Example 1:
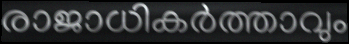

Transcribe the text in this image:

രാജാധികർത്താവും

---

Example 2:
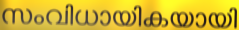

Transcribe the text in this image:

സംവിധായികയായി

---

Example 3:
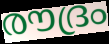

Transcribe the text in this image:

രൗദ്രം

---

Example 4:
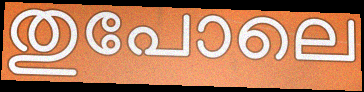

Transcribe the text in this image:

തുപോലെ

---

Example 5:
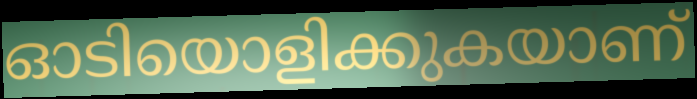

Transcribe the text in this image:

ഓടിയൊളിക്കുകയാണ്